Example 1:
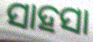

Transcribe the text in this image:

ସାହସା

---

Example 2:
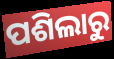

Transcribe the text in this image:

ପଶିଲାରୁ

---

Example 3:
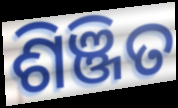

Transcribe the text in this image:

ଶିଞ୍ଜିତ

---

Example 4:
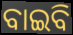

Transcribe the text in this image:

ବାଇବି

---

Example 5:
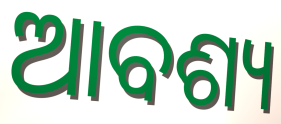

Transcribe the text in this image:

ଆବଶ୍ୟ